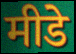
मीडे